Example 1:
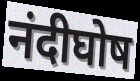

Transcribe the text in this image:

नंदीघोष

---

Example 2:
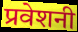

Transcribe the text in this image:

प्रवेशनी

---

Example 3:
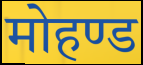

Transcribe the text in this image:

मोहण्ड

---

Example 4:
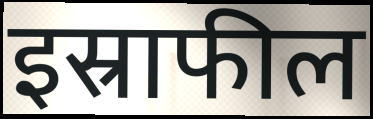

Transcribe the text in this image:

इस्राफील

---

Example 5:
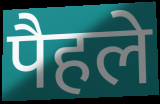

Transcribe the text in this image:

पैहले